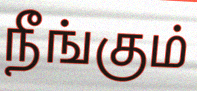
நீங்கும்